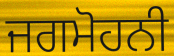
ਜਗਮੋਹਨੀ